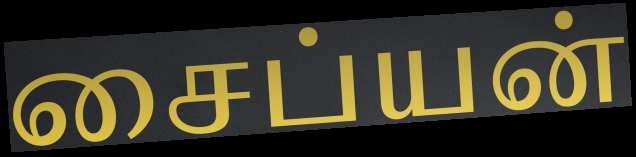
சைப்யன்